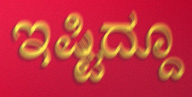
ಇಷ್ಟಿದ್ದೂ